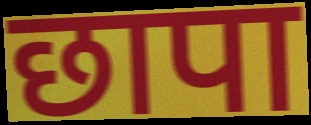
छापा